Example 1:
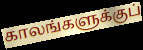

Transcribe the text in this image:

காலங்களுக்குப்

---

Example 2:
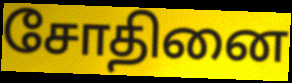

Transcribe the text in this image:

சோதினை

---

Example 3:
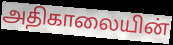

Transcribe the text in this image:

அதிகாலையின்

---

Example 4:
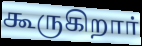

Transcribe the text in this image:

கூருகிறார்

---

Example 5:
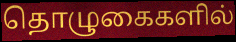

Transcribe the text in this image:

தொழுகைகளில்